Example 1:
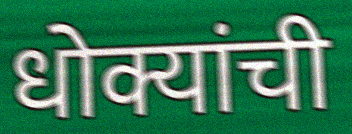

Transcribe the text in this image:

धोक्यांची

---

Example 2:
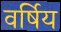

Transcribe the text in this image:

वर्षिय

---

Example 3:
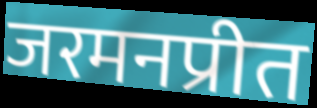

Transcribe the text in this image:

जरमनप्रीत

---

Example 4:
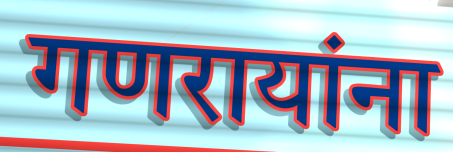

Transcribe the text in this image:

गणरायांना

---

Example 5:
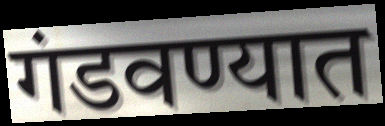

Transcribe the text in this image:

गंडवण्यात